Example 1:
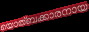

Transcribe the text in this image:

യൊത്ബക്കാരനായ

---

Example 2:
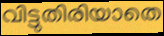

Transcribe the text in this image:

വിട്ടുതിരിയാതെ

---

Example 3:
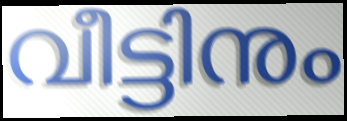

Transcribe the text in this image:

വീട്ടിനും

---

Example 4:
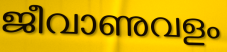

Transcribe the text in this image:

ജീവാണുവളം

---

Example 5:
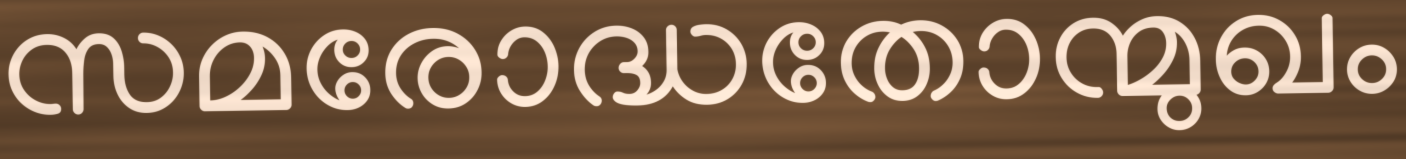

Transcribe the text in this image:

സമരോദ്ധതോന്മുഖം